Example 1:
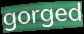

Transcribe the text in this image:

gorged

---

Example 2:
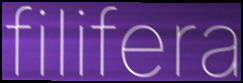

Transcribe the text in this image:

filifera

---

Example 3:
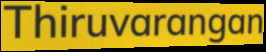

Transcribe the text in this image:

Thiruvarangan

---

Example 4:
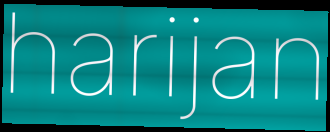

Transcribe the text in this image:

harijan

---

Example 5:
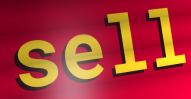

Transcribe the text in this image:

sell